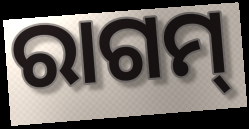
ରାଗମ୍